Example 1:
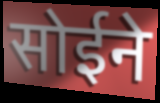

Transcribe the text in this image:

सोईने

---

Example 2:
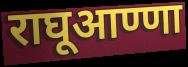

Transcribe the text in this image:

राघूआण्णा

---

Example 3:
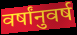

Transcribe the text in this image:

वर्षांनुवर्ष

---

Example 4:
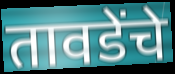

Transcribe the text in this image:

तावडेंचे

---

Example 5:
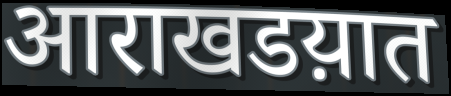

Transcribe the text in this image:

आराखडय़ात